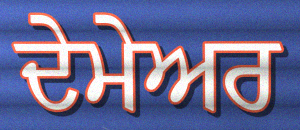
ਦੇਮੇਅਰ